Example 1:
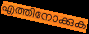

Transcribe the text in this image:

എത്തിനോക്കുക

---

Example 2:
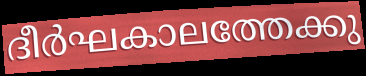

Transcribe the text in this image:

ദീർഘകാലത്തേക്കു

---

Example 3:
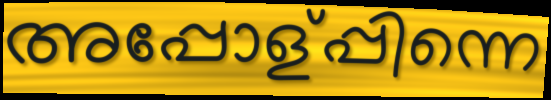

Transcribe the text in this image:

അപ്പോള്പ്പിന്നെ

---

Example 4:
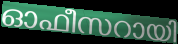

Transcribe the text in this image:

ഓഫീസറായി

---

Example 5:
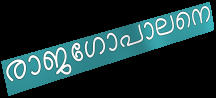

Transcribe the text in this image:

രാജഗോപാലനെ